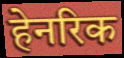
हेनरिक